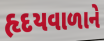
હૃદયવાળાને